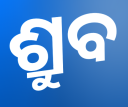
ଶ୍ରୁବ